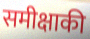
समीक्षाकी